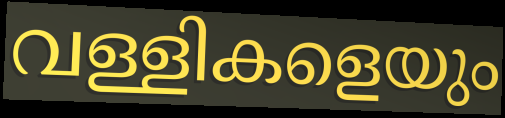
വള്ളികളെയും